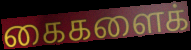
கைகளைக்